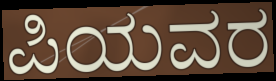
ಪಿಯವರ